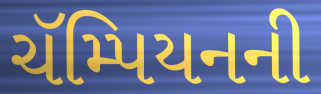
ચૅમ્પિયનની